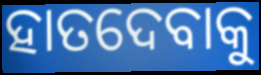
ହାତଦେବାକୁ